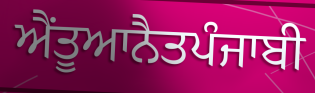
ਐਂਤੂਆਨੈਤਪੰਜਾਬੀ